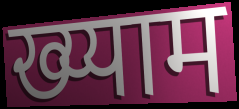
ख्य्याम